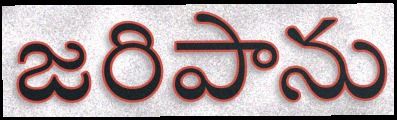
జరిపాను